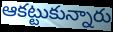
ఆకట్టుకున్నారు